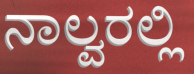
ನಾಲ್ವರಲ್ಲಿ